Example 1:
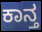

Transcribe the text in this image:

ಕಾನ್ತ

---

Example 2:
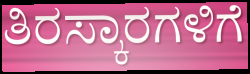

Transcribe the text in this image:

ತಿರಸ್ಕಾರಗಳಿಗೆ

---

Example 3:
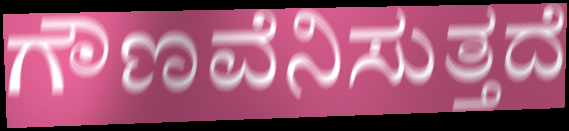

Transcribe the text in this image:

ಗೌಣವೆನಿಸುತ್ತದೆ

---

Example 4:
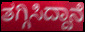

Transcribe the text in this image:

ತಗ್ಗಿಸಿದ್ದಾನೆ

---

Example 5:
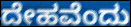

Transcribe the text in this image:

ದೇಹವೆಂದು